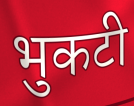
भुकटी